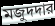
মজুদদার